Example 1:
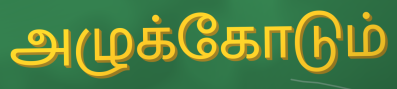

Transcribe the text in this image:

அழுக்கோடும்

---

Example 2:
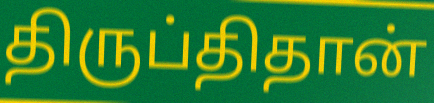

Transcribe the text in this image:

திருப்திதான்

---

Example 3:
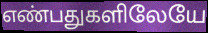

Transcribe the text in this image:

எண்பதுகளிலேயே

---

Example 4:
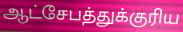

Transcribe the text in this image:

ஆட்சேபத்துக்குரிய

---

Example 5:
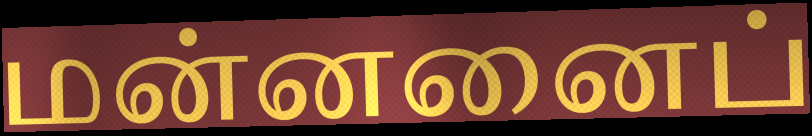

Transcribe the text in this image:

மன்னனைப்